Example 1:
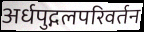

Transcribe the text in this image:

अर्धपुद्गलपरिवर्तन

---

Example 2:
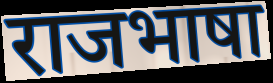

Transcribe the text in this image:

राजभाषा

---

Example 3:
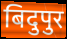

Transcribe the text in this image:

बिदुपुर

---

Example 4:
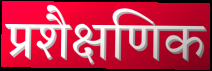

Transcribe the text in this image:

प्रशैक्षणिक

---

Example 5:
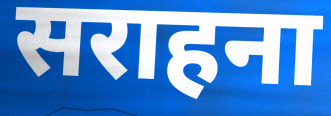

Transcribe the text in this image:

सराहना